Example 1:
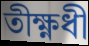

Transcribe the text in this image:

তীক্ষ্ণধী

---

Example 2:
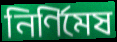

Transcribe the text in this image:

নির্ণিমেষ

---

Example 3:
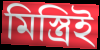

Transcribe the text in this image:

মিস্ত্রিই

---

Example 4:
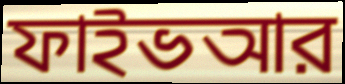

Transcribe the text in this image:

ফাইভআর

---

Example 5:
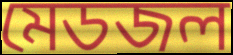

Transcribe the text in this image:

মেডজল